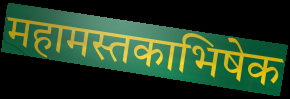
महामस्तकाभिषेक